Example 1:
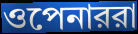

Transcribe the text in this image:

ওপেনাররা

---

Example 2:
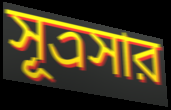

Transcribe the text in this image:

সূত্রসার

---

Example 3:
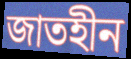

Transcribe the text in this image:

জাতহীন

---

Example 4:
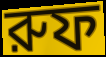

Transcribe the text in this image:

রুফ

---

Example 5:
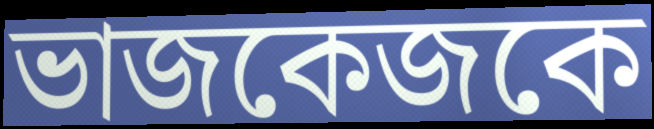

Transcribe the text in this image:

ভাজকেজকে